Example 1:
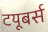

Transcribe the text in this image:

टयूबर्स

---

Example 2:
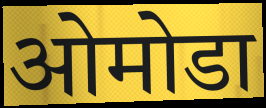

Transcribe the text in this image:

ओमोडा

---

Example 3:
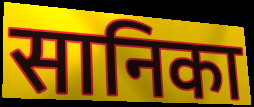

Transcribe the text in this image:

सानिका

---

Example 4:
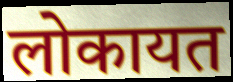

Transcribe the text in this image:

लोकायत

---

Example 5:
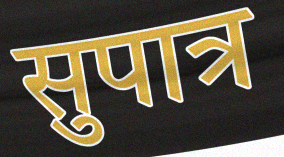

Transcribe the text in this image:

सुपात्र